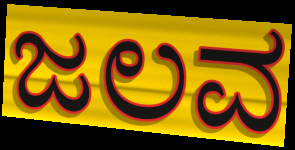
ಜಲವ